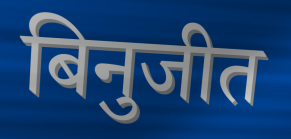
बिनुजीत